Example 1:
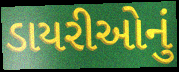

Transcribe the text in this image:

ડાયરીઓનું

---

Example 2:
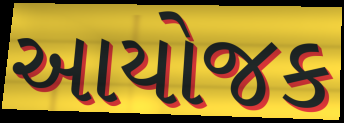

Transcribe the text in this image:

આયોજક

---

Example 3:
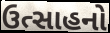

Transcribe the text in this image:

ઉત્સાહનો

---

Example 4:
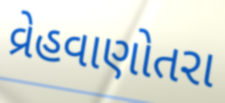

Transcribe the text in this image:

વ્રેહવાણોતરા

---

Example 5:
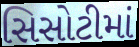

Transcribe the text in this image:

સિસોટીમાં